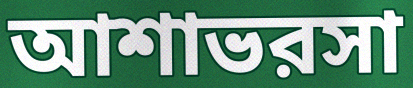
আশাভরসা